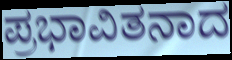
ಪ್ರಭಾವಿತನಾದ